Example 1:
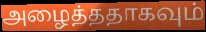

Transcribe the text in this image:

அழைத்ததாகவும்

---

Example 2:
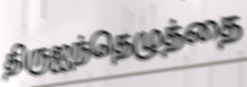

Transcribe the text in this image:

திருஐந்தெழுத்தை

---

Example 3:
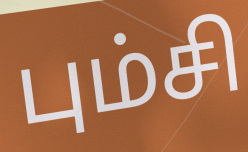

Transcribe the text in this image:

பும்சி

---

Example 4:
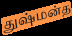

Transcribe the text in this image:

துஷ்மன்த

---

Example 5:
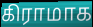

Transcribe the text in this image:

கிராமாக